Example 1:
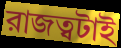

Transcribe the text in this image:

রাজত্বটাই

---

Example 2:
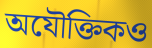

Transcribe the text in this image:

অযৌক্তিকও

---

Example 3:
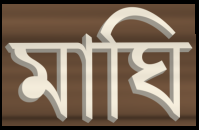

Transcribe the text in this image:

মাঘি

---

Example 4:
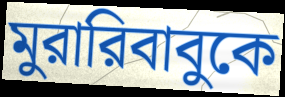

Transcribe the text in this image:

মুরারিবাবুকে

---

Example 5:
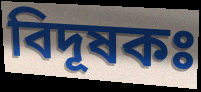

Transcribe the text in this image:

বিদূষকঃ